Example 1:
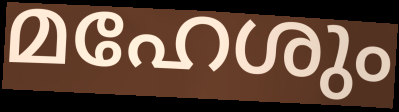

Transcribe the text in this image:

മഹേശും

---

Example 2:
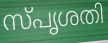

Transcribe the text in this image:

സ്പൃശതി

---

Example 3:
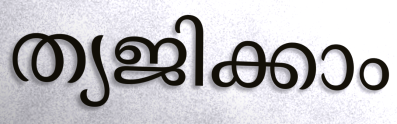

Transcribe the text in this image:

ത്യജിക്കാം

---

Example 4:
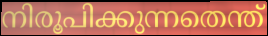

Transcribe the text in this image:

നിരൂപിക്കുന്നതെന്ത്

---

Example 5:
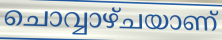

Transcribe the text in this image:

ചൊവ്വാഴ്ചയാണ്